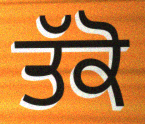
ਤੱਕੋ